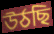
উঠছি